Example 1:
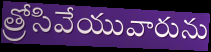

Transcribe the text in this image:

త్రోసివేయువారును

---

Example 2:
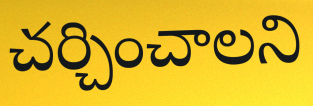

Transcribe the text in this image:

చర్చించాలని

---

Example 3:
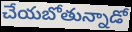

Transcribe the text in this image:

చేయబోతున్నాడో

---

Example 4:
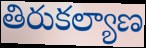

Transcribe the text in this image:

తిరుకల్యాణ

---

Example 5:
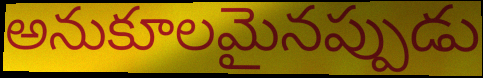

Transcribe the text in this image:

అనుకూలమైనప్పుడు